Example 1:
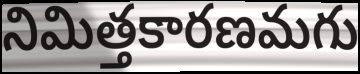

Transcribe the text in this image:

నిమిత్తకారణమగు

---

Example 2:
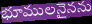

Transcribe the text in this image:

భూములనైనను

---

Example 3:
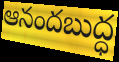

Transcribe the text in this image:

ఆనందబుద్ధ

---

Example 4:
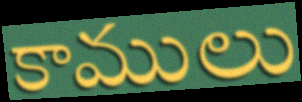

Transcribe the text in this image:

కాములు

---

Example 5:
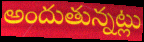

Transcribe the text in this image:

అందుతున్నట్లు